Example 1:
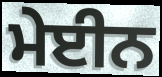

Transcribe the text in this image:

ਮੇਈਨ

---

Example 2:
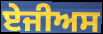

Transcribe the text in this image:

ਏਜੀਅਸ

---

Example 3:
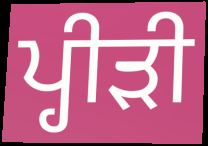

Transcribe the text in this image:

ਪ੍ਹੀੜੀ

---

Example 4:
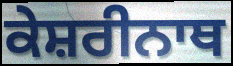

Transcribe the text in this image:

ਕੇਸ਼ਰੀਨਾਥ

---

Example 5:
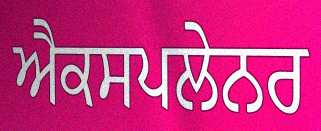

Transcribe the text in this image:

ਐਕਸਪਲੇਨਰ